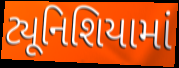
ટ્યૂનિશિયામાં